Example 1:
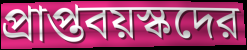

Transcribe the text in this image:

প্রাপ্তবয়স্কদের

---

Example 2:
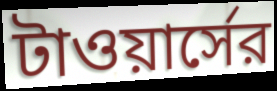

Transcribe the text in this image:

টাওয়ার্সের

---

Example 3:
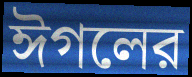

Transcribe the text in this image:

ঈগলের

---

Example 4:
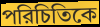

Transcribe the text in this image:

পরিচিতিকে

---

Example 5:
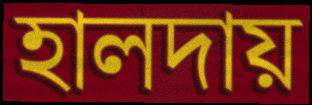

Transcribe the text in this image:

হালদায়